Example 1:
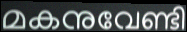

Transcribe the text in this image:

മകനുവേണ്ടി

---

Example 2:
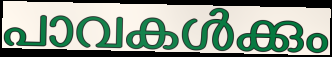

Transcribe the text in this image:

പാവകൾക്കും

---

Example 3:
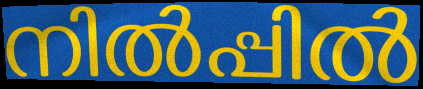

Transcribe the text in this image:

നിൽപ്പിൽ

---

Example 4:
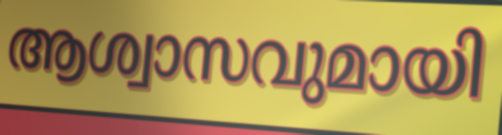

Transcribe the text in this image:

ആശ്വാസവുമായി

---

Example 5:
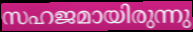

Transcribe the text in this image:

സഹജമായിരുന്നു